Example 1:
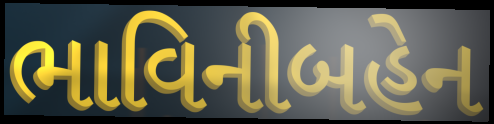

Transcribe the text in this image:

ભાવિનીબહેન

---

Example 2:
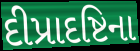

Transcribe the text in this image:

દીપ્રાદષ્ટિના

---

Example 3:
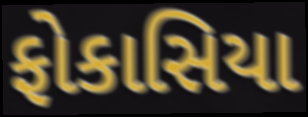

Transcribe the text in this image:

ફોકાસિયા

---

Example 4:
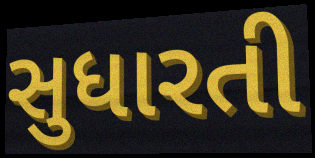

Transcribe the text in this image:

સુધારતી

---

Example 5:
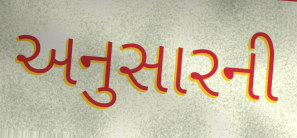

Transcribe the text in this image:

અનુસારની